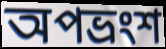
অপভ্ৰংশ